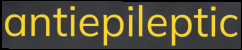
antiepileptic